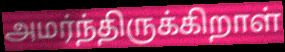
அமர்ந்திருக்கிறாள்